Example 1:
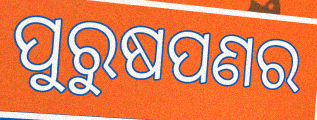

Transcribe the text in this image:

ପୁରୁଷପଣର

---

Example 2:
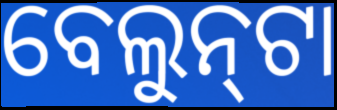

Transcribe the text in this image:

ବେଲୁନ୍‌ଟା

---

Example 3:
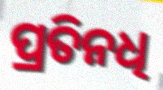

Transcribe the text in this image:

ପ୍ରତିନଧି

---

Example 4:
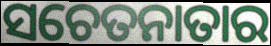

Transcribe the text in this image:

ସଚେତନାତାର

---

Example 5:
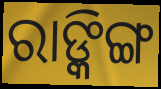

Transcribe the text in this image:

ରାଙ୍କିଙ୍ଗ